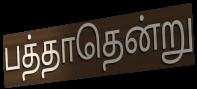
பத்தாதென்று